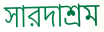
সারদাশ্রম